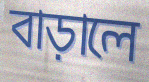
বাড়ালে